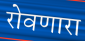
रोवणारा